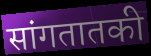
सांगतातकी